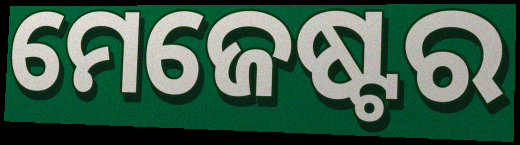
ମେଜେଷ୍ଟର